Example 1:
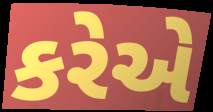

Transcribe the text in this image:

કરેએ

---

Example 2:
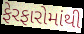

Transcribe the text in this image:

ફેરફારોમાંથી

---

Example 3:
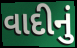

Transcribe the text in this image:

વાદીનું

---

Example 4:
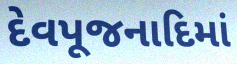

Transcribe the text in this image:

દેવપૂજનાદિમાં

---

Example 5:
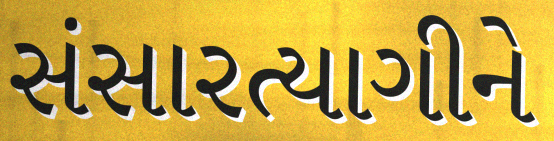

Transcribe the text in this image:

સંસારત્યાગીને